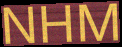
NHM